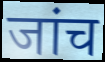
जांच